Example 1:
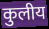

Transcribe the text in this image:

कुलीय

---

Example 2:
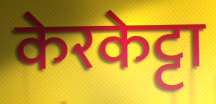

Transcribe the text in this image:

केरकेट्टा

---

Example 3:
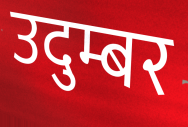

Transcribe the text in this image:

उदुम्बर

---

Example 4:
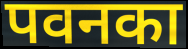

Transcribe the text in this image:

पवनका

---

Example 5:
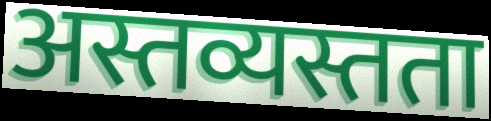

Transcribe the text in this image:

अस्तव्यस्तता